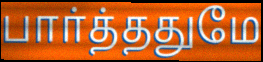
பார்த்ததுமே